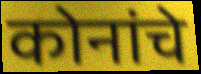
कोनांचे